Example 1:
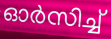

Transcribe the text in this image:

ഓർസിച്ച്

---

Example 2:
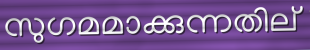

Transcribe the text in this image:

സുഗമമാക്കുന്നതില്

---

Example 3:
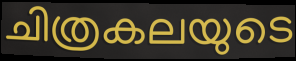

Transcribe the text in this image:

ചിത്രകലയുടെ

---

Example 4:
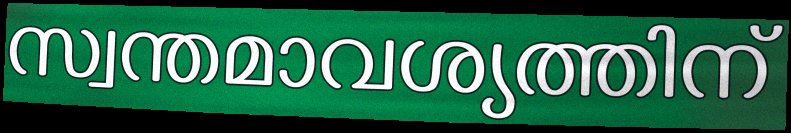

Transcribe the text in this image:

സ്വന്തമാവശ്യത്തിന്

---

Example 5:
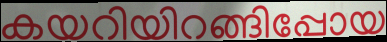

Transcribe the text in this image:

കയറിയിറങ്ങിപ്പോയ